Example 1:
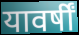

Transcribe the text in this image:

यावर्षीं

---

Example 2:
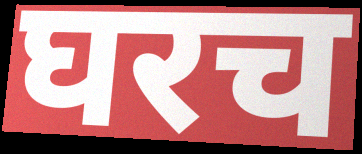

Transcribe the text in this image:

घरच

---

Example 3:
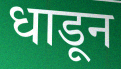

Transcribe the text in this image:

धाडून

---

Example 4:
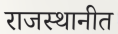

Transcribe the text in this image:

राजस्थानीत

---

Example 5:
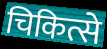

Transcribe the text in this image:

चिकित्से